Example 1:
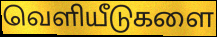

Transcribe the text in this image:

வெளியீடுகளை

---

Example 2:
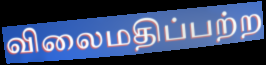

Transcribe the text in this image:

விலைமதிப்பற்ற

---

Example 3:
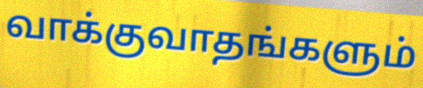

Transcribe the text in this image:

வாக்குவாதங்களும்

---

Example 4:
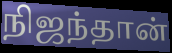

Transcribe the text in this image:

நிஜந்தான்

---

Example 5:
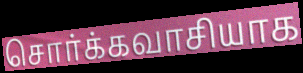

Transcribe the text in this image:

சொர்க்கவாசியாக